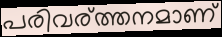
പരിവര്ത്തനമാണ്